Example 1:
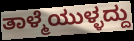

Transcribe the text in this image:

ತಾಳ್ಮೆಯುಳ್ಳದ್ದು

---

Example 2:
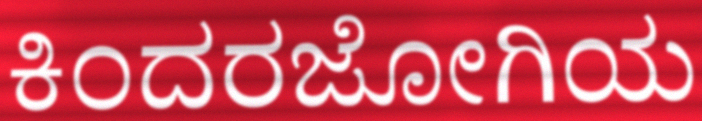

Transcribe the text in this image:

ಕಿಂದರಜೋಗಿಯ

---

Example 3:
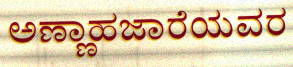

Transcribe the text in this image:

ಅಣ್ಣಾಹಜಾರೆಯವರ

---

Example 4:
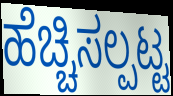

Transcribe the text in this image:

ಹೆಚ್ಚಿಸಲ್ಪಟ್ಟ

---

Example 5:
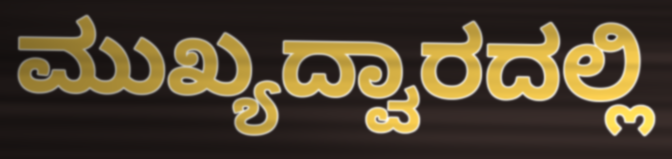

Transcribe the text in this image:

ಮುಖ್ಯದ್ವಾರದಲ್ಲಿ